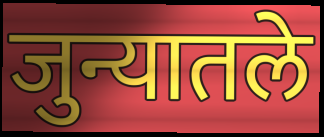
जुन्यातले